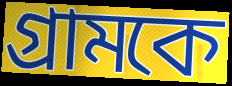
গ্রামকে